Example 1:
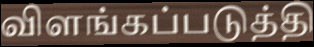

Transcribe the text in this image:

விளங்கப்படுத்தி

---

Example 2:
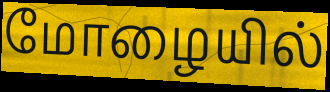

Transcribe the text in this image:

மோழையில்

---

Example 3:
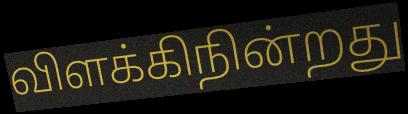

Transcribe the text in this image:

விளக்கிநின்றது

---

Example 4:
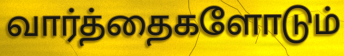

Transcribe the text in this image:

வார்த்தைகளோடும்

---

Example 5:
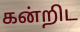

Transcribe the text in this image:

கன்றிட